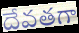
దేవతగా